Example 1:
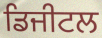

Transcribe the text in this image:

ਡਿਜੀਟਲ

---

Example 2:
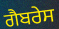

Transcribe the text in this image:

ਗੈਬਰੇਸ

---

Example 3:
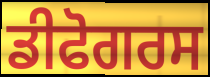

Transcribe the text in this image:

ਡੀਫੋਗਰਸ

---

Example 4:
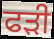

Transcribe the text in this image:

ਫੜੀ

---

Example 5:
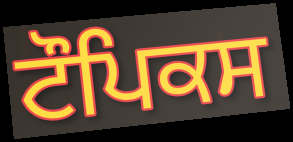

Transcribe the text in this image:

ਟੌਪਿਕਸ